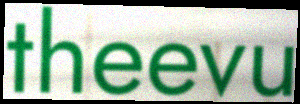
theevu